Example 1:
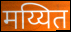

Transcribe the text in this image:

मय्यित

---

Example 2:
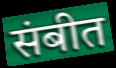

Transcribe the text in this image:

संबीत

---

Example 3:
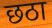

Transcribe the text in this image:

छठा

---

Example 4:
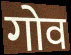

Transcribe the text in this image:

गोव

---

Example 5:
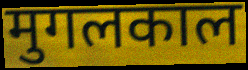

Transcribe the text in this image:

मुगलकाल